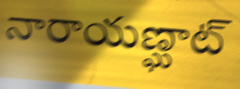
నారాయణ్ఘాట్